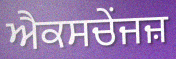
ਐਕਸਚੇਂਜਜ਼